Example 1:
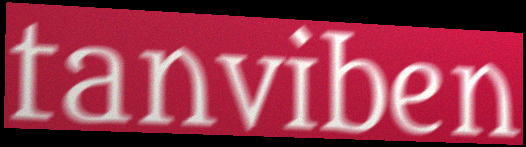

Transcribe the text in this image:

tanviben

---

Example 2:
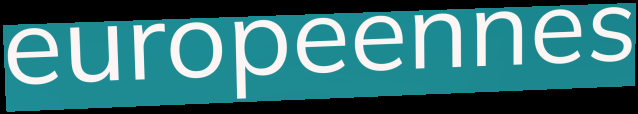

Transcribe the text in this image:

europeennes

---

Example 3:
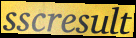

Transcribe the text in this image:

sscresult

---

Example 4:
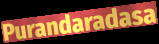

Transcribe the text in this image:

Purandaradasa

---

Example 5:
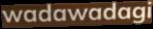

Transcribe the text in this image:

wadawadagi